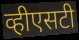
व्हीएसटी